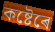
কষ্টেৰে